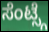
ಸೆಂಟ್ಸ್ಗೆ